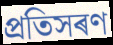
প্ৰতিসৰণ